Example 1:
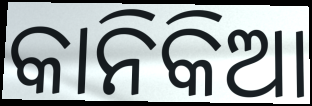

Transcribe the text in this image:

କାନିକିଆ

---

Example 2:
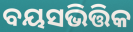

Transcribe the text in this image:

ବୟସଭିତ୍ତିକ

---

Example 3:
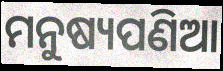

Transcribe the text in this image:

ମନୁଷ୍ୟପଣିଆ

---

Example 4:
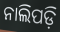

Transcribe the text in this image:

ନାଲିପଡ଼ି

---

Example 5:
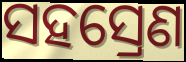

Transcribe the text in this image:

ସହସ୍ରେଣ